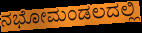
ನಭೋಮಂಡಲದಲ್ಲಿ